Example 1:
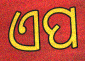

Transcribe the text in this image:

ଏପ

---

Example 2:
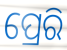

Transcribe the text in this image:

ପ୍ରେରି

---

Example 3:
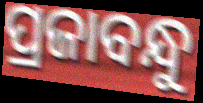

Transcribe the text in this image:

ପ୍ରଜାବନ୍ଧୁ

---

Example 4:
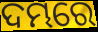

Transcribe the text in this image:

ଦମ୍ଭରେ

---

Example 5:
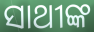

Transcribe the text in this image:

ସାଥୀଙ୍କ